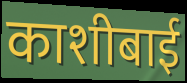
काशीबाई